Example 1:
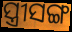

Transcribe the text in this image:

ସ୍ତ୍ରୀସଙ୍ଗ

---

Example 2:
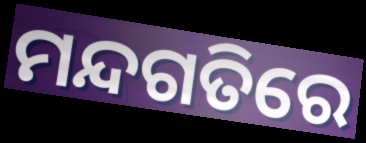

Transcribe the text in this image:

ମନ୍ଦଗତିରେ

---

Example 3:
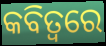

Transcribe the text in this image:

କବିତ୍ୱରେ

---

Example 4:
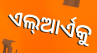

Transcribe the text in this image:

ଏଲ୍ଆର୍ଏକୁ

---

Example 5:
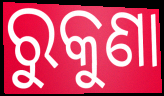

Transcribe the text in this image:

ରୁକୁଣା